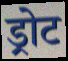
ड्रोट